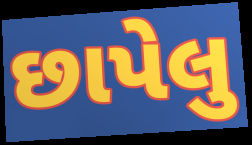
છાપેલુ